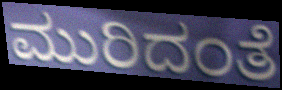
ಮುರಿದಂತೆ